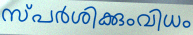
സ്പർശിക്കുംവിധം